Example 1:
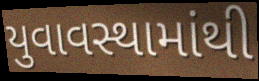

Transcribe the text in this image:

યુવાવસ્થામાંથી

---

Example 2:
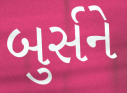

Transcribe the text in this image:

બુર્સને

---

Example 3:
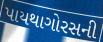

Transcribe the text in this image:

પાયથાગોરસની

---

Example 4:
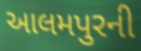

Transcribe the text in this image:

આલમપુરની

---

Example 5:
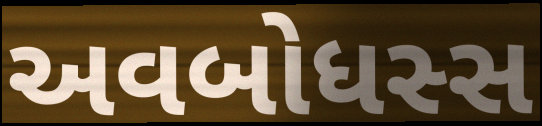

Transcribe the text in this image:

અવબોધસ્સ